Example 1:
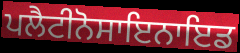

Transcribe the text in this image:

ਪਲੈਟੀਨੋਸਾਇਨਾਇਡ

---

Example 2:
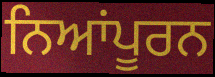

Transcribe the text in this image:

ਨਿਆਂਪੂਰਨ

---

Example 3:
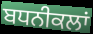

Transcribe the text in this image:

ਬਧਨੀਕਲਾਂ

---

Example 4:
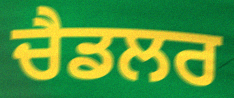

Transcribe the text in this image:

ਚੈਡਲਰ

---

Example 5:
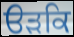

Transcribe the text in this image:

ੳੜਕਿ